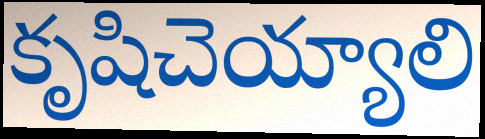
కృషిచెయ్యాలి